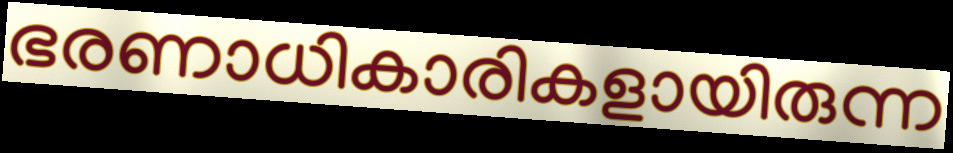
ഭരണാധികാരികളായിരുന്ന